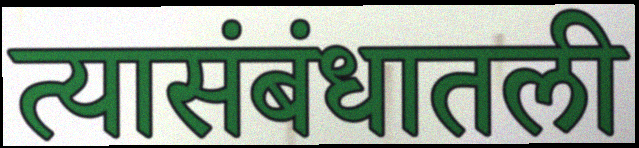
त्यासंबंधातली